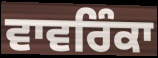
ਵਾਵਰਿੰਕਾ